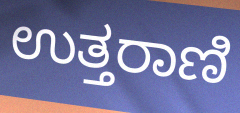
ಉತ್ತರಾಣಿ